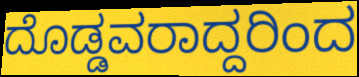
ದೊಡ್ಡವರಾದ್ದರಿಂದ